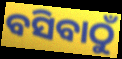
ବସିବାଠୁଁ